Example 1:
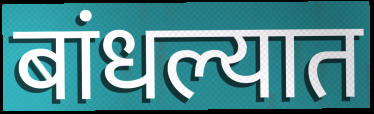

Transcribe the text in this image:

बांधल्यात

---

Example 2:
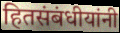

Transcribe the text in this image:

हितसंबंधीयांनी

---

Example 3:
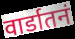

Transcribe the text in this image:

वार्डातनं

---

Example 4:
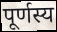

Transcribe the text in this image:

पूर्णस्य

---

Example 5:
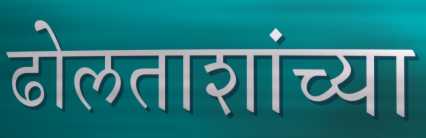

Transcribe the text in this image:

ढोलताशांच्या